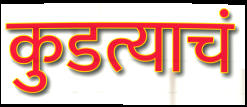
कुडत्याचं